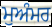
ਮੁਅੰਮਰ